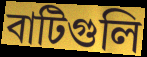
বাটিগুলি